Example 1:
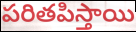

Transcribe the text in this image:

పరితపిస్తాయి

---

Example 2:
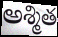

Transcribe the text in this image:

అశ్మిత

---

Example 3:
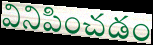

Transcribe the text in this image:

వినిపించడం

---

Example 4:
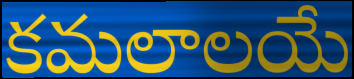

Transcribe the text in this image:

కమలాలయే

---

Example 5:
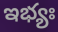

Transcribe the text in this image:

ఇభ్యః